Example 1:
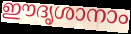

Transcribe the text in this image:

ഈദൃശാനാം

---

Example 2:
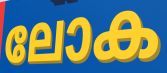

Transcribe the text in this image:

ലോക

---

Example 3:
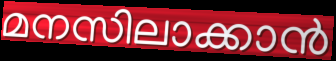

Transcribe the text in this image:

മനസിലാക്കാൻ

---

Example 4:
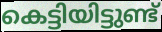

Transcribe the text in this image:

കെട്ടിയിട്ടുണ്ട്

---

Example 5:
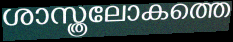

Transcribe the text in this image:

ശാസ്ത്രലോകത്തെ